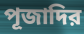
পূজাদির